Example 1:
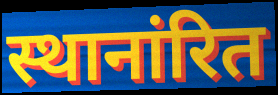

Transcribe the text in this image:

स्थानांरित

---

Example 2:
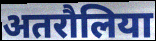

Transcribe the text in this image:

अतरौलिया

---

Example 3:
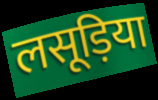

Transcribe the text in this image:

लसूड़िया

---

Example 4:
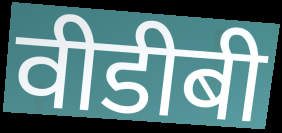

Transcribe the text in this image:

वीडीबी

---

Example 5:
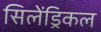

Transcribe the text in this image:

सिलेंड्रिकल